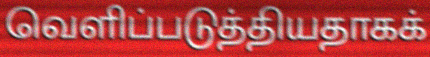
வெளிப்படுத்தியதாகக்